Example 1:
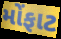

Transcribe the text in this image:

મોંફાટ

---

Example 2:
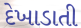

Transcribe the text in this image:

દેખાડાતી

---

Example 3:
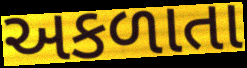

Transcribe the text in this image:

અકળાતા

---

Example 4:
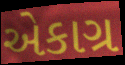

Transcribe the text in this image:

એકાગ્ર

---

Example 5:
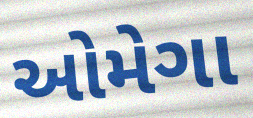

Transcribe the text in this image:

ઓમેગા